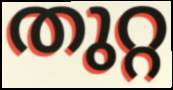
തുറ്റ